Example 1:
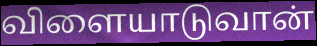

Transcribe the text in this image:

விளையாடுவான்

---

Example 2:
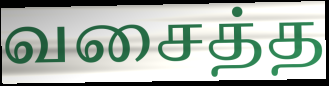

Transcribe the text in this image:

வசைத்த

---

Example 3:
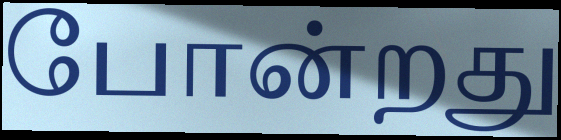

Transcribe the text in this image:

போன்றது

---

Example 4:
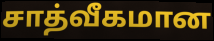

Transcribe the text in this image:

சாத்வீகமான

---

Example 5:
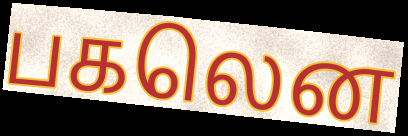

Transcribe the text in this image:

பகலென